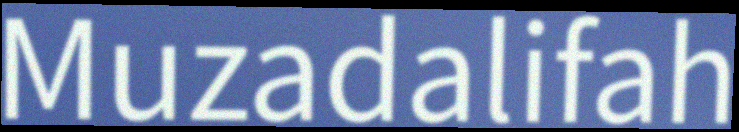
Muzadalifah